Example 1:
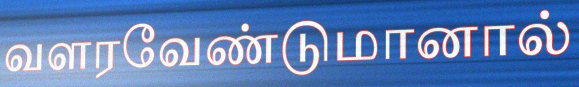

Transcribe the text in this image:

வளரவேண்டுமானால்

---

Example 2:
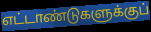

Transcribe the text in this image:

எட்டாண்டுகளுக்குப்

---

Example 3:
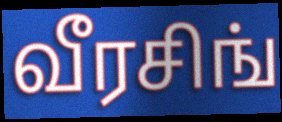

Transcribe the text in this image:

வீரசிங்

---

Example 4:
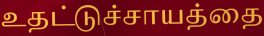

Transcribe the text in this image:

உதட்டுச்சாயத்தை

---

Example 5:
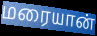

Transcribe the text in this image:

மரையான்